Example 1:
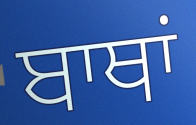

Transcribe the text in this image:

ਬਾਥਾਂ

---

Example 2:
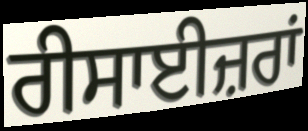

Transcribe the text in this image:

ਰੀਸਾਈਜ਼ਰਾਂ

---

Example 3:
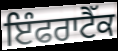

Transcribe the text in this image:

ਇੰਫਰਾਟੈੱਕ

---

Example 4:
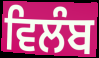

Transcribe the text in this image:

ਵਿਲੰਬ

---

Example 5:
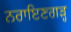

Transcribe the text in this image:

ਨਰਾਇਣਗੜ੍ਹ